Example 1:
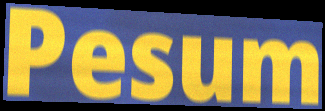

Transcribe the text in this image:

Pesum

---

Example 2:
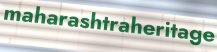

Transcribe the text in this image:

maharashtraheritage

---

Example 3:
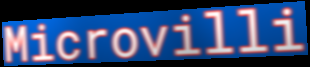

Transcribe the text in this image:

Microvilli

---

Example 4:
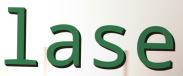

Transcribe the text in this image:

lase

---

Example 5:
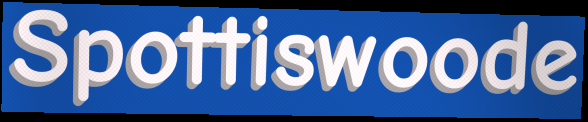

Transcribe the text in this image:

Spottiswoode